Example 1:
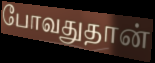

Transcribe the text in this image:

போவதுதான்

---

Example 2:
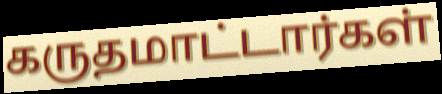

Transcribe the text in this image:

கருதமாட்டார்கள்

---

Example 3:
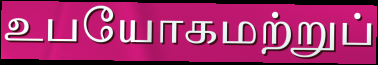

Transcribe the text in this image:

உபயோகமற்றுப்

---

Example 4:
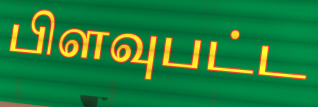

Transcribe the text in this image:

பிளவுபட்ட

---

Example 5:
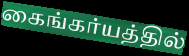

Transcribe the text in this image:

கைங்கர்யத்தில்